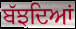
ਬੱਝਦਿਆਂ